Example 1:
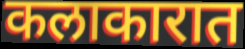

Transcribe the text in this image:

कलाकारात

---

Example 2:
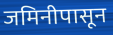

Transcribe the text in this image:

जमिनीपासून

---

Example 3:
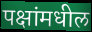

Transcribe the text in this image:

पक्षांमधील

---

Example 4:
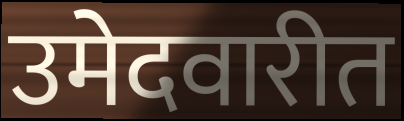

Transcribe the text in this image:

उमेदवारीत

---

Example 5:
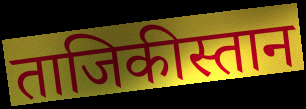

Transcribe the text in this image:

ताजिकीस्तान